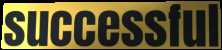
successful